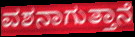
ವಶನಾಗುತ್ತಾನೆ